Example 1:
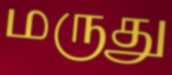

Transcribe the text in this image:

மருது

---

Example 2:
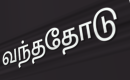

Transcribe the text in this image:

வந்ததோடு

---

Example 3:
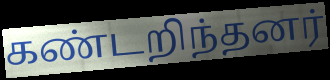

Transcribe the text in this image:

கண்டறிந்தனர்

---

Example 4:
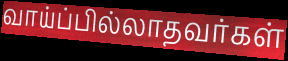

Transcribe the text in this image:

வாய்ப்பில்லாதவர்கள்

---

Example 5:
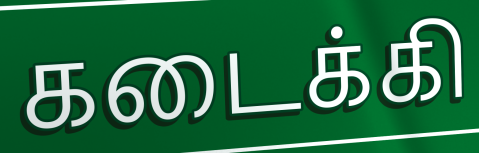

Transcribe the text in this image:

கடைக்கி